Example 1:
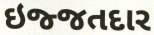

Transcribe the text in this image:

ઇજ્જતદાર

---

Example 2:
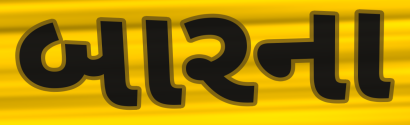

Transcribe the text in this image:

બારના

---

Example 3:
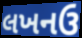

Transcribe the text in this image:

લખનઉ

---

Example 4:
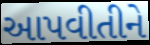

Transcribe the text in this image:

આપવીતીને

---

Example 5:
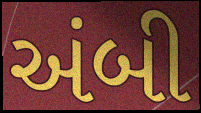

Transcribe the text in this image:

અંબી